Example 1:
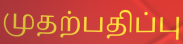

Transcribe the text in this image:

முதற்பதிப்பு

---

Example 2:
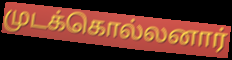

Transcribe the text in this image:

முடக்கொல்லனார்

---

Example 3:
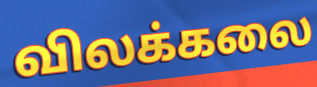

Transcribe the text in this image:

விலக்கலை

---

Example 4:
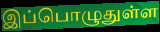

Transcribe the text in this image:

இப்பொழுதுள்ள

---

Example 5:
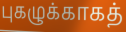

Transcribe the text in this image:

புகழுக்காகத்